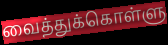
வைத்துக்கொள்ளு